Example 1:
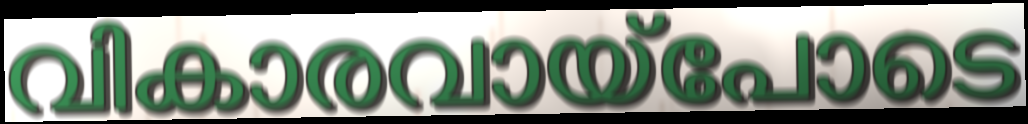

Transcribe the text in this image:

വികാരവായ്പോടെ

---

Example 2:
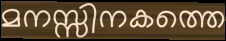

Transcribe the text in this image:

മനസ്സിനകത്തെ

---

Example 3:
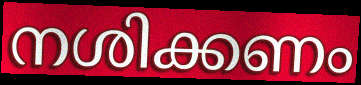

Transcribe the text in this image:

നശിക്കണം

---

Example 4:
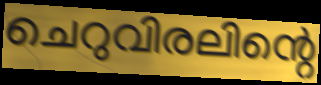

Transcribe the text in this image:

ചെറുവിരലിന്റെ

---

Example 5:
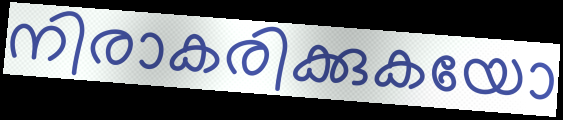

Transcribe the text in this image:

നിരാകരിക്കുകയോ